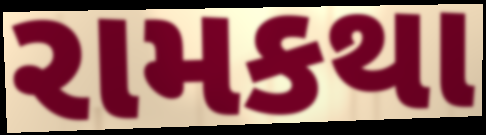
રામકથા